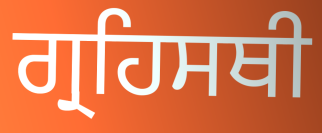
ਗ੍ਰਹਿਸਥੀ